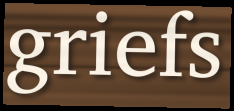
griefs